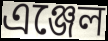
এঞ্জেল